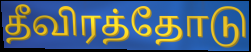
தீவிரத்தோடு